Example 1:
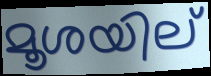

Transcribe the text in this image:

മൂശയില്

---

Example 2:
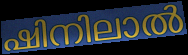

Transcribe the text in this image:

ഷിനിലാൽ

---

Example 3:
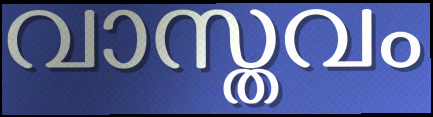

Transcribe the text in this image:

വാസ്തവം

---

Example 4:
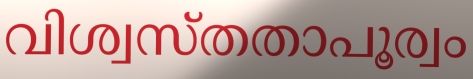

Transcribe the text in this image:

വിശ്വസ്തതാപൂര്വം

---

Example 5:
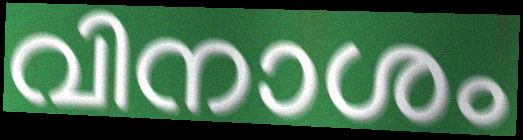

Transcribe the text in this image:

വിനാശം